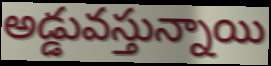
అడ్డువస్తున్నాయి